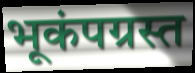
भूकंपग्रस्त